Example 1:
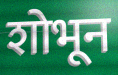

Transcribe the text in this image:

शोभून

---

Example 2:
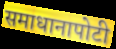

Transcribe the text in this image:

समाधानापोटी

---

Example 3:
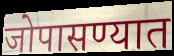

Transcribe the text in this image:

जोपासण्यात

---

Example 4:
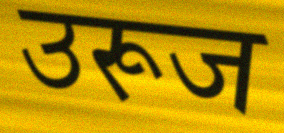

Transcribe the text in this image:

उरूज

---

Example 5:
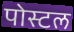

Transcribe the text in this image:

पोस्टल